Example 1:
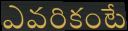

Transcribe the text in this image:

ఎవరికంటే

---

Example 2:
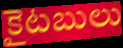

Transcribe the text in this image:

కైటబులు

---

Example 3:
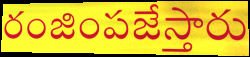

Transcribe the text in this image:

రంజింపజేస్తారు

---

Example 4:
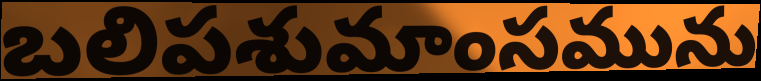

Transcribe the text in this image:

బలిపశుమాంసమును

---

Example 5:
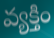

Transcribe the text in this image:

వ్యక్తిం